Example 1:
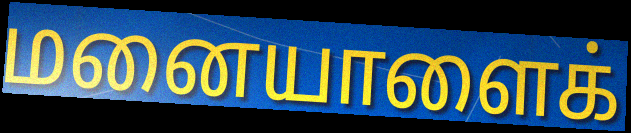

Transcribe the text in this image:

மனையாளைக்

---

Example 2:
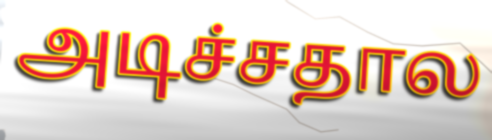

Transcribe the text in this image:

அடிச்சதால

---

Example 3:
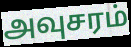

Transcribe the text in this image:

அவுசரம்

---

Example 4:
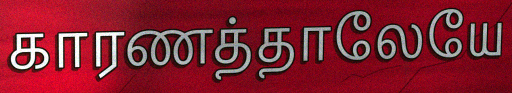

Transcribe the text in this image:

காரணத்தாலேயே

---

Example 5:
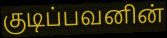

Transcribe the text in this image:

குடிப்பவனின்